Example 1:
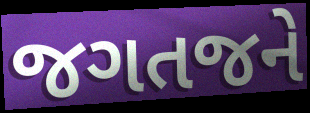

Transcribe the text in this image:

જગતજને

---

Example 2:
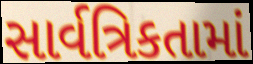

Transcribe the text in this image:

સાર્વત્રિકતામાં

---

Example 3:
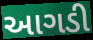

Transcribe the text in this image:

આગડી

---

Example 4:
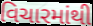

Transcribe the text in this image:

વિચારમાંથી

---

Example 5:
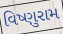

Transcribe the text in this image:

વિષ્ણુરામ